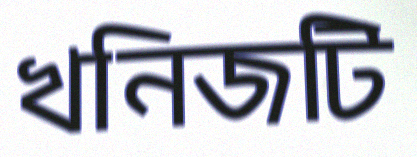
খনিজটি